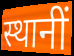
स्थानीं